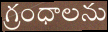
గ్రంధాలను